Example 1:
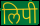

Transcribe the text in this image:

लिपी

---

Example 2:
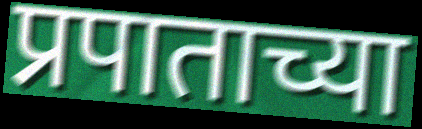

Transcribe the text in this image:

प्रपाताच्या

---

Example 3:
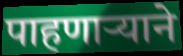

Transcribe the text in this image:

पाहणार्‍याने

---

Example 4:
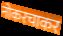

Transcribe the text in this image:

नोकरचाकर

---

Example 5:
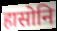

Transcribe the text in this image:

हासोनि